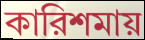
কারিশমায়